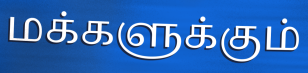
மக்களுக்கும்